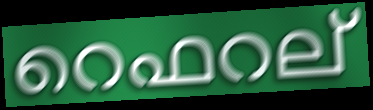
റെഫറല്